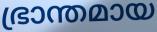
ഭ്രാന്തമായ